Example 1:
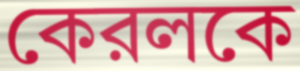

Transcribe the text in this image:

কেরলকে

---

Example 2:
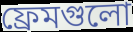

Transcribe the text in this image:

ফ্রেমগুলো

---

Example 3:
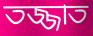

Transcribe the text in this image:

তজ্জাত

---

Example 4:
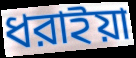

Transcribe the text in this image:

ধরাইয়া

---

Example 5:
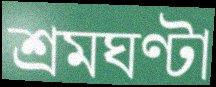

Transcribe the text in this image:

শ্রমঘণ্টা